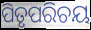
ପିତୃପରିଚୟ